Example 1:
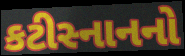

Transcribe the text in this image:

કટીસ્નાનનો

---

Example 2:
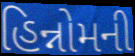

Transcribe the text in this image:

હિન્નોમની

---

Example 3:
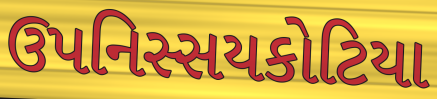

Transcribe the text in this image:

ઉપનિસ્સયકોટિયા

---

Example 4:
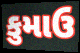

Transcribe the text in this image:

કુમાઉ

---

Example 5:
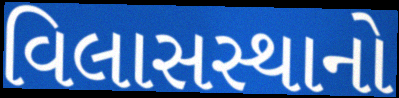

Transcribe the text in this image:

વિલાસસ્થાનો